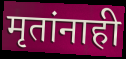
मृतांनाही